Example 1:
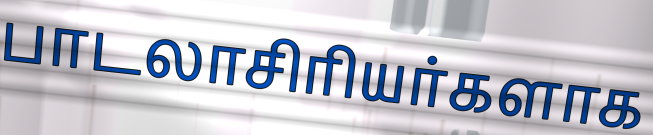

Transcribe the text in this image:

பாடலாசிரியர்களாக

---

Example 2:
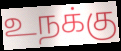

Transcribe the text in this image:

உநக்கு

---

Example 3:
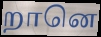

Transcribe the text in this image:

றானெ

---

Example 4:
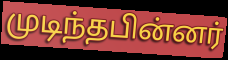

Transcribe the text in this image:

முடிந்தபின்னர்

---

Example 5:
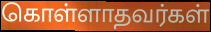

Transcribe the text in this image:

கொள்ளாதவர்கள்